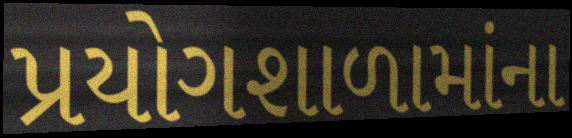
પ્રયોગશાળામાંના